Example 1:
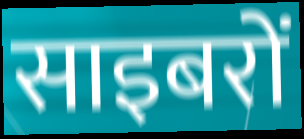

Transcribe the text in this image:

साइबरों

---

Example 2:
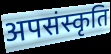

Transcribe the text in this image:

अपसंस्कृति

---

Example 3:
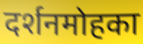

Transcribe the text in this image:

दर्शनमोहका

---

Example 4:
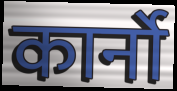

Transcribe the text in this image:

कार्नो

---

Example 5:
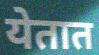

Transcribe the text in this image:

येतात